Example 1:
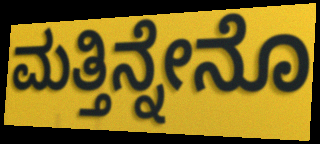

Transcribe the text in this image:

ಮತ್ತಿನ್ನೇನೊ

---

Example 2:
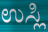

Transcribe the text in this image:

ಉಸ್ಲಿ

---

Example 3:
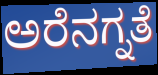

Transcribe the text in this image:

ಅರೆನಗ್ನತೆ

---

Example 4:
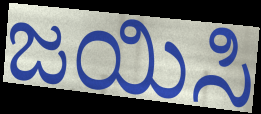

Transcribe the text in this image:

ಜಯಿಸಿ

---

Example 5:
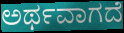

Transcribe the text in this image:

ಅರ್ಥವಾಗದೆ